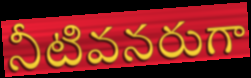
నీటివనరుగా